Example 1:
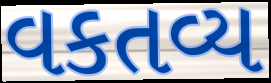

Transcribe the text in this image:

વકતવ્ય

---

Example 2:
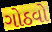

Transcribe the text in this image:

ગોઠવો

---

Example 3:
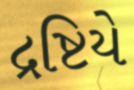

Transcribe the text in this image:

દ્રષ્ટિયે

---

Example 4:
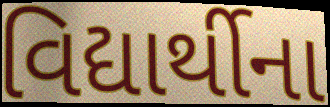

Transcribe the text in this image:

વિદ્યાર્થીના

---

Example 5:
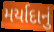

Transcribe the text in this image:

મર્યાદાનું